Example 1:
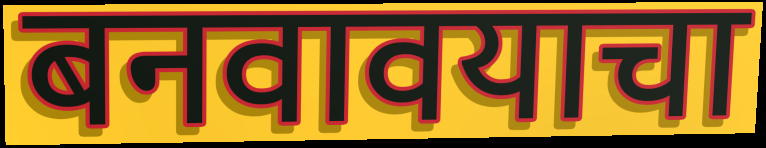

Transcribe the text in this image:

बनवावयाचा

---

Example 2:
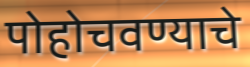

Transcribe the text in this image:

पोहोचवण्याचे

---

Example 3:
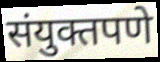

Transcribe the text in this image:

संयुक्तपणे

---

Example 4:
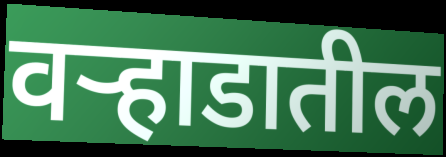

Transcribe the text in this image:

वऱ्हाडातील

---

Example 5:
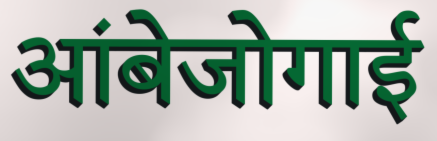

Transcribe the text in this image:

आंबेजोगाई